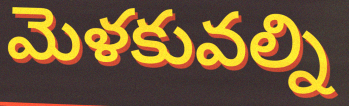
మెళకువల్ని